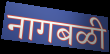
नागबळी